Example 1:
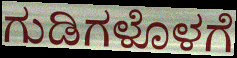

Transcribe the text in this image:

ಗುಡಿಗಳೊಳಗೆ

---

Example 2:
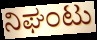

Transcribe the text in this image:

ನಿಘಂಟು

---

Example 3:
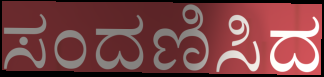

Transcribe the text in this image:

ಸಂದಣಿಸಿದ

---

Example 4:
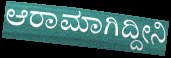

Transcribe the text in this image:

ಆರಾಮಾಗಿದ್ದೀನಿ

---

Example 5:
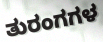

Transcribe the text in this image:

ತುರಂಗಗಳ